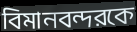
বিমানবন্দরকে